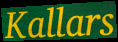
Kallars